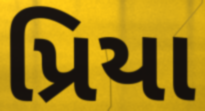
પ્રિયા